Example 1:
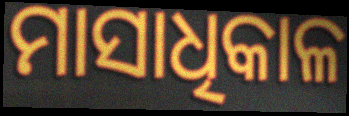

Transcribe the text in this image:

ମାସାଧିକାଳ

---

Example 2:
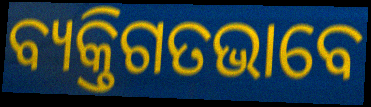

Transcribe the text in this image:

ବ୍ୟକ୍ତିଗତଭାବେ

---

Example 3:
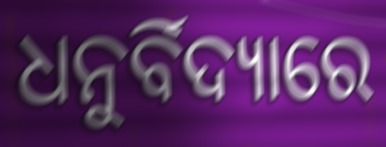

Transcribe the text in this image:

ଧନୁର୍ବିଦ୍ୟାରେ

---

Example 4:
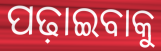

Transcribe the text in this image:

ପଢ଼ାଇବାକୁ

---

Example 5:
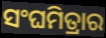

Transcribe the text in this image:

ସଂଘମିତ୍ରାର